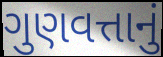
ગુણવત્તાનું